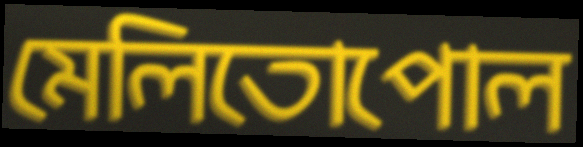
মেলিতোপোল